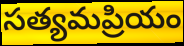
సత్యమప్రియం